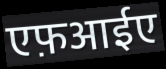
एफ़आईए